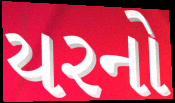
યરનો